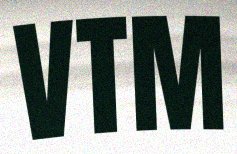
VTM